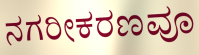
ನಗರೀಕರಣವೂ